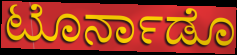
ಟೊರ್ನಾಡೊ